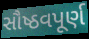
સૌષ્ઠવપૂર્ણ